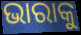
ଭାରାକୁ